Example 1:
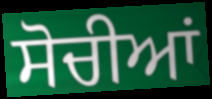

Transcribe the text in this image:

ਸੋਚੀਆਂ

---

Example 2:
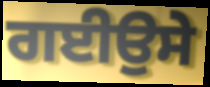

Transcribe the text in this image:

ਗਈਉਸੇ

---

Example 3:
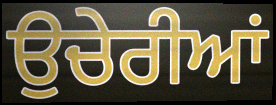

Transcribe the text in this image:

ਉਚੇਰੀਆਂ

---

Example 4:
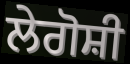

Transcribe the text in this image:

ਲੇਗੋਸ਼ੀ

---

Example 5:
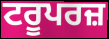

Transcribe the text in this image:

ਟਰੂਪਰਜ਼